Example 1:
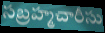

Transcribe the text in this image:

సబ్రహ్మచారీసు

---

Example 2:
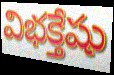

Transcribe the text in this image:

విభక్తేషు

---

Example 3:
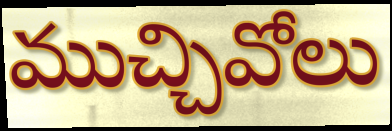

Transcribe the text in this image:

ముచ్చివోలు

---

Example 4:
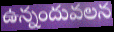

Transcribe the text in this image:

ఉన్నందువలన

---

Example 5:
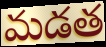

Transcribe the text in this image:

మడత